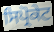
ਸਿਪ੍ਰੋਕੇਟ